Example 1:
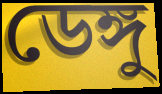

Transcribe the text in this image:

ডেঙ্গু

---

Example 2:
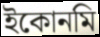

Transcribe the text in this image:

ইকোনমি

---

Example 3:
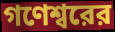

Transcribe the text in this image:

গণেশ্বরের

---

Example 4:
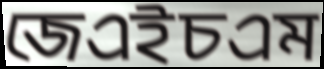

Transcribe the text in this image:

জেএইচএম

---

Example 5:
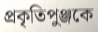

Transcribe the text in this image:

প্রকৃতিপুঞ্জকে